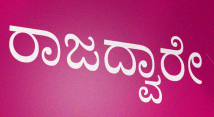
ರಾಜದ್ವಾರೇ